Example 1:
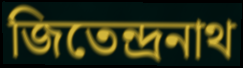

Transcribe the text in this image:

জিতেন্দ্রনাথ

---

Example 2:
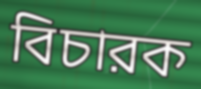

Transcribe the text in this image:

বিচারক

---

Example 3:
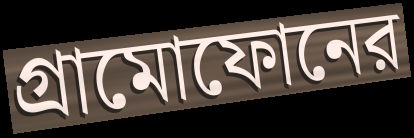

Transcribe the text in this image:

গ্রামোফোনের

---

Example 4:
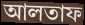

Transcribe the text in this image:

আলতাফ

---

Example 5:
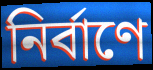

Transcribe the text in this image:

নির্বাণে